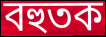
বহুতক